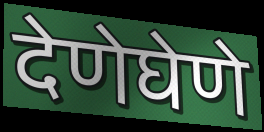
देणेघेणे